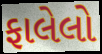
ફાલેલો